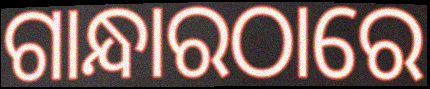
ଗାନ୍ଧାରଠାରେ